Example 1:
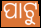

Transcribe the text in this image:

ପାଟୁ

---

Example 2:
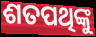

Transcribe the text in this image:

ଶତପଥିଙ୍କୁ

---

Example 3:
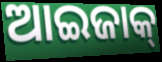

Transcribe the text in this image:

ଆଇଜାକ୍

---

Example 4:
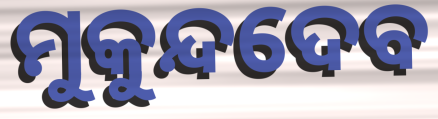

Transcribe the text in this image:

ମୁକୁନ୍ଦଦେବ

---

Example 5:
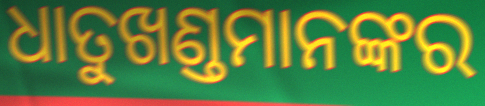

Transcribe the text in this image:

ଧାତୁଖଣ୍ଡମାନଙ୍କର